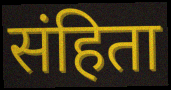
संहिता